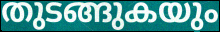
തുടങ്ങുകയും